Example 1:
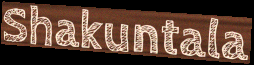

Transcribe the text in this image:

Shakuntala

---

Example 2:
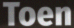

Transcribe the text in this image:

Toen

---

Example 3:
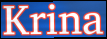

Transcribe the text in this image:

Krina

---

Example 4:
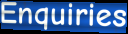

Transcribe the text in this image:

Enquiries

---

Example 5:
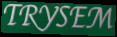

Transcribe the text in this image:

TRYSEM